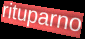
rituparno